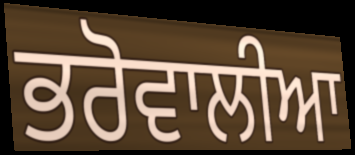
ਭਰੋਵਾਲੀਆ